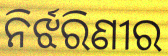
ନିର୍ଝରିଣୀର